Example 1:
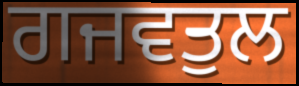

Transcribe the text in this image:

ਗਜਵਤੁਲ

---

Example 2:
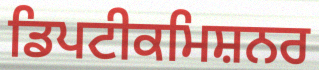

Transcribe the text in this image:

ਡਿਪਟੀਕਮਿਸ਼ਨਰ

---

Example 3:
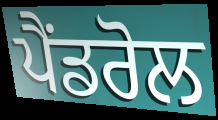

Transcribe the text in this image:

ਪੈਂਡਰੋਲ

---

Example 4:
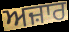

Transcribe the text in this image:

ਅਜ਼ਾਰ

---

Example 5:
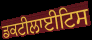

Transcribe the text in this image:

ਡਕਟੀਲਾਈਟਿਸ